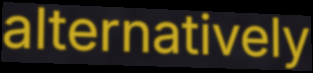
alternatively